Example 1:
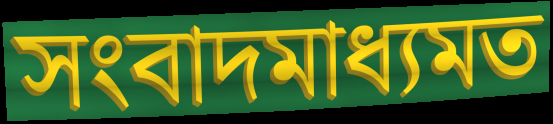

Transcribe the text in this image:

সংবাদমাধ্যমত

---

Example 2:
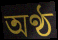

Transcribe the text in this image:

অণ্ঠ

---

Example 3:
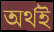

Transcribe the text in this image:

অৰ্থই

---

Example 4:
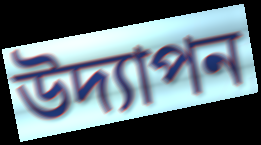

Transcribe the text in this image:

উদ্যাপন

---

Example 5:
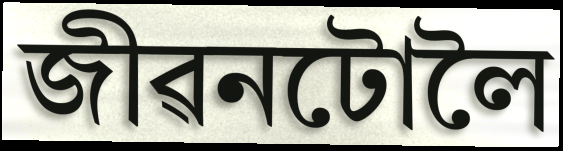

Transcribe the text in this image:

জীৱনটোলৈ